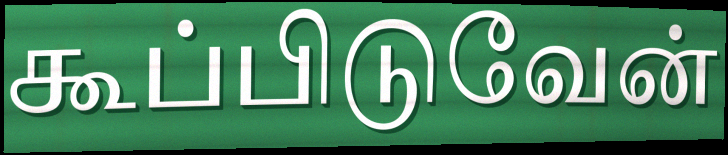
கூப்பிடுவேன்